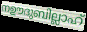
നഊദുബില്ലാഹ്